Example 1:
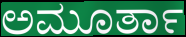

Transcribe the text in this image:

ಅಮೂರ್ತಾ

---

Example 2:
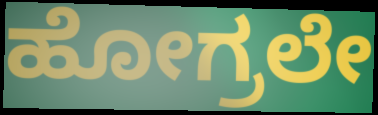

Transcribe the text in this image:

ಹೋಗ್ರಲೇ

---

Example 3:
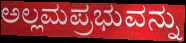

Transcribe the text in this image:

ಅಲ್ಲಮಪ್ರಭುವನ್ನು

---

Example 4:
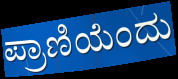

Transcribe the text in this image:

ಪ್ರಾಣಿಯೆಂದು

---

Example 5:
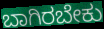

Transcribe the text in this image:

ಬಾಗಿರಬೇಕು